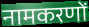
नामकरणों